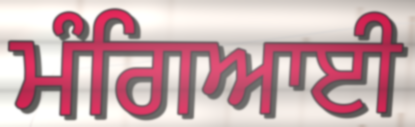
ਮੰਗਿਆਈ